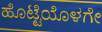
ಹೊಟ್ಟೆಯೊಳಗೇ